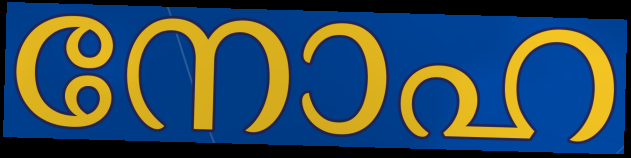
നോഹ